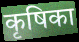
कृषिका